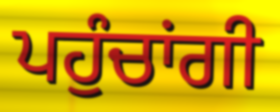
ਪਹੁੰਚਾਂਗੀ